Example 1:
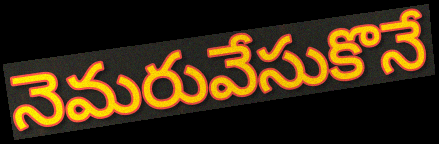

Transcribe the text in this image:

నెమరువేసుకొనే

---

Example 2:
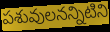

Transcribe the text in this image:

పశువులనన్నిటిని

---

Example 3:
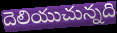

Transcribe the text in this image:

దెలియుచున్నది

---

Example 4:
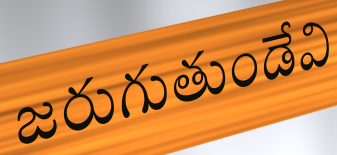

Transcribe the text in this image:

జరుగుతుండేవి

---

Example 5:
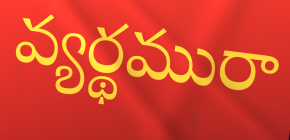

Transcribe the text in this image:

వ్యర్థమురా